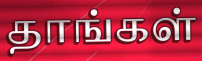
தாங்கள்